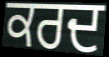
ਕਰਦ